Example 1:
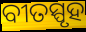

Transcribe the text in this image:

ବୀତସ୍ପୃହ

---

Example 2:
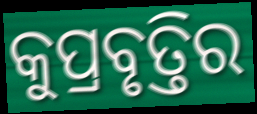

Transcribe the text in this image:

କୁପ୍ରବୃତ୍ତିର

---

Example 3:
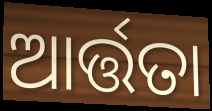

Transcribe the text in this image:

ଆର୍ତ୍ତତା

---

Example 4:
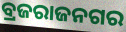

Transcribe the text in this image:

ବ୍ରଜରାଜନଗର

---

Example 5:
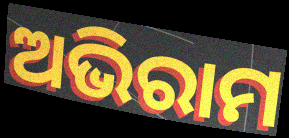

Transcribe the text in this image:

ଅଭିରାମ